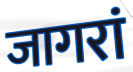
जागरां